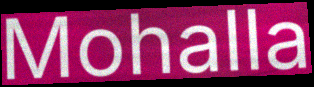
Mohalla